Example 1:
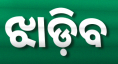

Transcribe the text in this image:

ଝାଡ଼ିବ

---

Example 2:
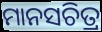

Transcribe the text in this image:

ମାନସଚିତ୍ର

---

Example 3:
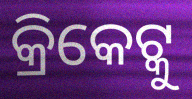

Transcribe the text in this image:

କ୍ରିକେଟ୍କୁ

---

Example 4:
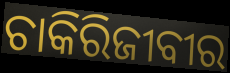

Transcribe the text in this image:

ଚାକିରିଜୀବୀର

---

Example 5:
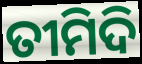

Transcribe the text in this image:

ତୀମିଦି